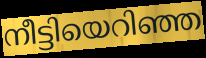
നീട്ടിയെറിഞ്ഞ